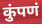
कुंपणं